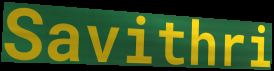
Savithri